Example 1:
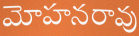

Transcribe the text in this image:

మోహనరావు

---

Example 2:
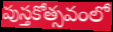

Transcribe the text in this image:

పుస్తకోత్సవంలో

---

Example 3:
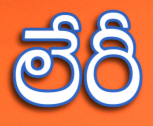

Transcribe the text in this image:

లేరీ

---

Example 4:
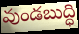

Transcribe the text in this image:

వుండబుద్ధి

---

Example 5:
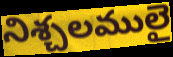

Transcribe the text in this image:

నిశ్చలములై